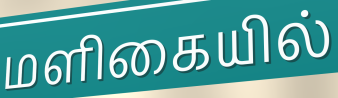
மளிகையில்